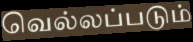
வெல்லப்படும்